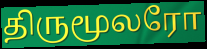
திருமூலரோ